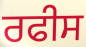
ਰਫੀਸ